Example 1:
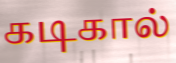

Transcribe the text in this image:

கடிகால்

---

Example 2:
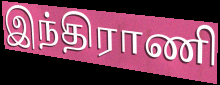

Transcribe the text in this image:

இந்திராணி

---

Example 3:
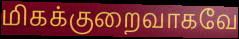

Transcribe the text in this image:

மிகக்குறைவாகவே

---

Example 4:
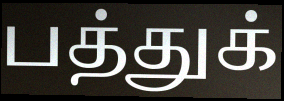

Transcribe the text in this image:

பத்துக்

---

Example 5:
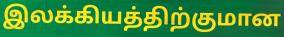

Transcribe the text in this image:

இலக்கியத்திற்குமான